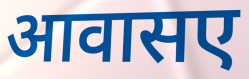
आवासए